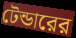
টেন্ডারের